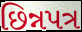
છિન્નપત્ર